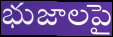
భుజాలపై